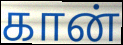
கான்